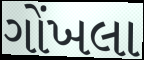
ગોંખલા